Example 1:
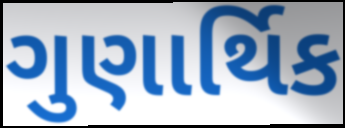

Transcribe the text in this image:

ગુણાર્થિક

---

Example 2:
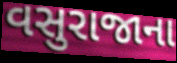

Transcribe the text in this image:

વસુરાજાના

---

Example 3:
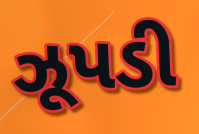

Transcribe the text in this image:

ઝૂપડી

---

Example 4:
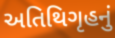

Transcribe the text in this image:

અતિથિગૃહનું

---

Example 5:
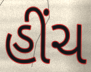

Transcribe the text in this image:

હીંચ